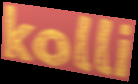
kolli